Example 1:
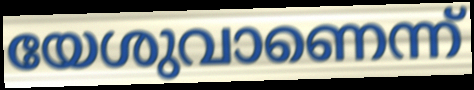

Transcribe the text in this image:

യേശുവാണെന്ന്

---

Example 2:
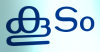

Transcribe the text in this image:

കൂടം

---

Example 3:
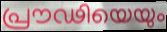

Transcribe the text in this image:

പ്രൗഢിയെയും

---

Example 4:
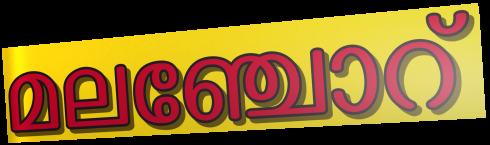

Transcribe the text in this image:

മലഞ്ചോറ്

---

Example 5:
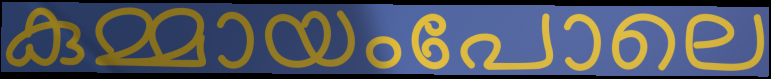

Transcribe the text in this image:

കുമ്മായംപോലെ